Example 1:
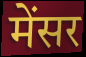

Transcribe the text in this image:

मेंसर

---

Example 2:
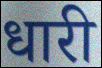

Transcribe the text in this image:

धारी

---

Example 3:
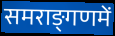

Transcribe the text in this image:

समराङ्गणमें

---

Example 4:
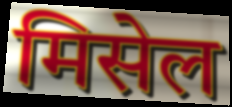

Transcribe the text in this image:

मिसेल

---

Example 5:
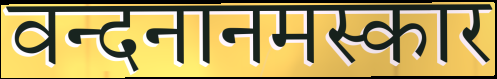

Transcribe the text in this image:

वन्दनानमस्कार